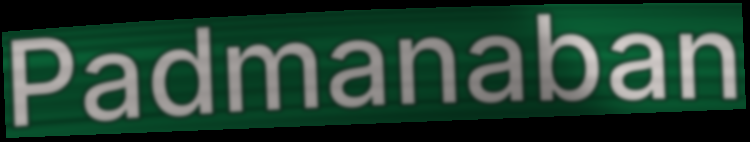
Padmanaban